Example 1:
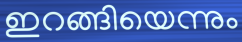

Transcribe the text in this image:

ഇറങ്ങിയെന്നും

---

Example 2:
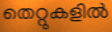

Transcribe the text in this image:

തെറ്റുകളിൽ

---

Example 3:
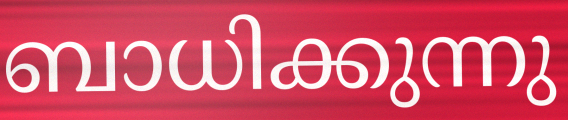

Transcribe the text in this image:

ബാധിക്കുന്നു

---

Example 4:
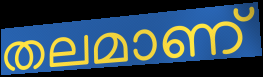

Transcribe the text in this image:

തലമാണ്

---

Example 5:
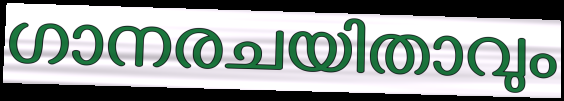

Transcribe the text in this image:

ഗാനരചയിതാവും